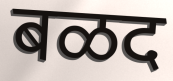
बळद